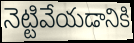
నెట్టివేయడానికి